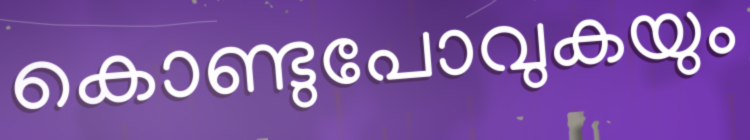
കൊണ്ടുപോവുകയും